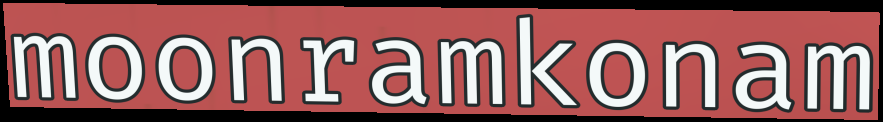
moonramkonam